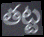
తట్ట